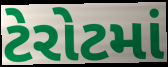
ટેરોટમાં